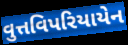
વુત્તવિપરિયાયેન